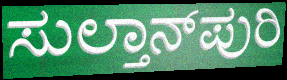
ಸುಲ್ತಾನ್‌ಪುರಿ